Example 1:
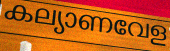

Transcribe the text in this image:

കല്യാണവേള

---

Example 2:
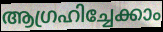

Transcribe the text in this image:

ആഗ്രഹിച്ചേക്കാം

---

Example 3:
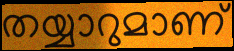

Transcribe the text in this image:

തയ്യാറുമാണ്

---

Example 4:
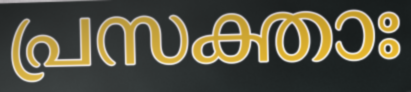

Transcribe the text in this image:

പ്രസക്താഃ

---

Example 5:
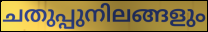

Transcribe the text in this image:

ചതുപ്പുനിലങ്ങളും